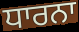
ਧਾਰਨਾ